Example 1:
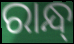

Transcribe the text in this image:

ରାନ୍ଧ୍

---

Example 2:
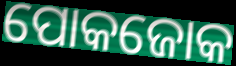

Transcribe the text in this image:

ପୋକଜୋକ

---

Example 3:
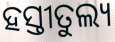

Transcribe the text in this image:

ହସ୍ତୀତୁଲ୍ୟ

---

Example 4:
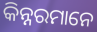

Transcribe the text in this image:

କିନ୍ନରମାନେ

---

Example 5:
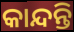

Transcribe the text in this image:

କାନ୍ଦନ୍ତି